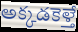
అక్కడకెళ్తే